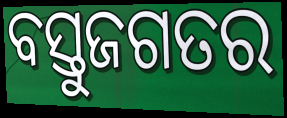
ବସ୍ତୁଜଗତର